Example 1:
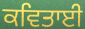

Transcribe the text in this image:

ਕਵਿਤਾਈ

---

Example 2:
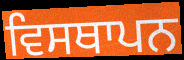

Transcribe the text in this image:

ਵਿਸਥਾਪਨ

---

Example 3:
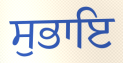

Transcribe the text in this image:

ਸੁਭਾਇ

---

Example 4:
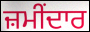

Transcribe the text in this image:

ਜ਼ਮੀਂਦਾਰ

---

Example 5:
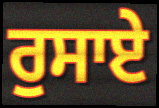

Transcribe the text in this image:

ਰੁਸਾਏ